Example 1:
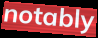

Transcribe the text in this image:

notably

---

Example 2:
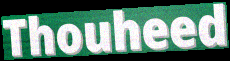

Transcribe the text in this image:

Thouheed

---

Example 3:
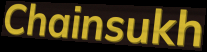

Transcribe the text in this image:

Chainsukh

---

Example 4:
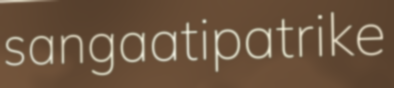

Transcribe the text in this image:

sangaatipatrike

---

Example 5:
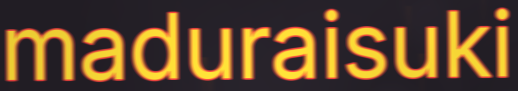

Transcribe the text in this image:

maduraisuki